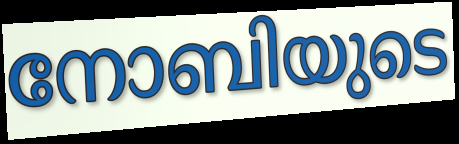
നോബിയുടെ